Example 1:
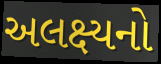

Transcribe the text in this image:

અલક્ષ્યનો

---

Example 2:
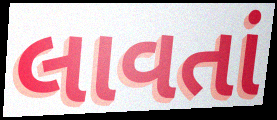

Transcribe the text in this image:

લાવતાં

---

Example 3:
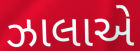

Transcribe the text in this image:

ઝાલાએ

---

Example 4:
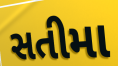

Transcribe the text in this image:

સતીમા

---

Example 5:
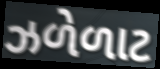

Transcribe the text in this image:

ઝળેળાટ